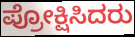
ಪ್ರೋಕ್ಷಿಸಿದರು